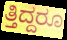
ತ್ತಿದ್ದರೂ